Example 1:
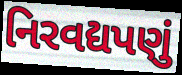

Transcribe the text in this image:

નિરવદ્યપણું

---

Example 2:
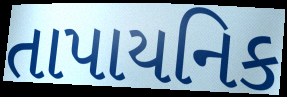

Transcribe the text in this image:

તાપાયનિક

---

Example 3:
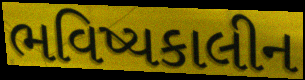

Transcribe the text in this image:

ભવિષ્યકાલીન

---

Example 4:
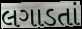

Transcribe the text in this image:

લગાડતાં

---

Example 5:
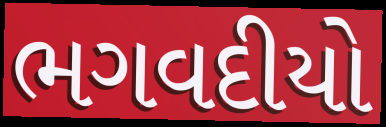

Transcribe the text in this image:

ભગવદીયો